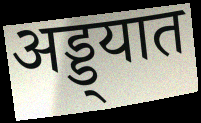
अड्ड्यात